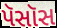
પૅસૉસ